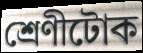
শ্ৰেণীটোক